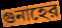
গুনাহের